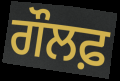
ਗੌਲਫ਼